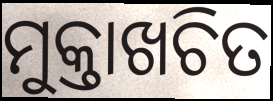
ମୁକ୍ତାଖଚିତ